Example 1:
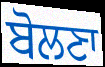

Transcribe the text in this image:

ਬੋਲਣਾ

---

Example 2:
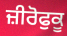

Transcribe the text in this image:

ਜ਼ੀਰੋਫੁਕੂ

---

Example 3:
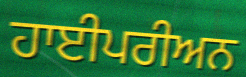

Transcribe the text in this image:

ਹਾਈਪਰੀਅਨ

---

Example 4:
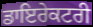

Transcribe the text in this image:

ਡਾਇਰੇਕਟਰੀ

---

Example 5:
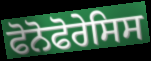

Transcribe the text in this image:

ਫੋਨੋਫੋਰੇਸਿਸ